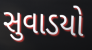
સુવાડયો